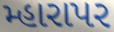
મ્હારાપર